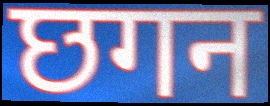
छगन